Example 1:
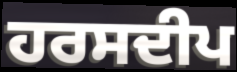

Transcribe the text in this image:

ਹਰਸਦੀਪ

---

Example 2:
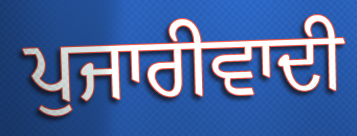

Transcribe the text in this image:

ਪੁਜਾਰੀਵਾਦੀ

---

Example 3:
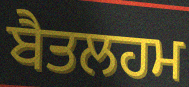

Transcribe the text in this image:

ਬੈਤਲਹਮ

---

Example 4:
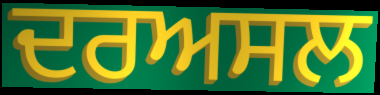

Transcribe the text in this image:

ਦਰਅਸਲ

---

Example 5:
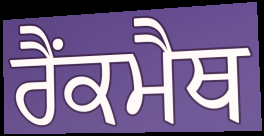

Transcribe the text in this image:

ਰੈਂਕਮੈਥ